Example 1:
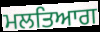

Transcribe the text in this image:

ਮਲਤਿਆਗ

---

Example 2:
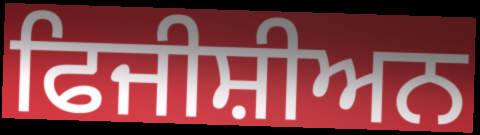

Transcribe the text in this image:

ਫਿਜੀਸ਼ੀਅਨ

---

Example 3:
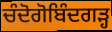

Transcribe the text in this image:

ਚੰਦੋਗੋਬਿੰਦਗੜ੍ਹ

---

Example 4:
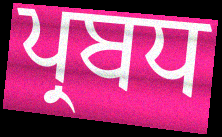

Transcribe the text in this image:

ਪ੍ਰਬਧ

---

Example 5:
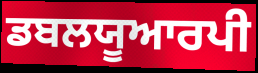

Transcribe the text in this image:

ਡਬਲਯੂਆਰਪੀ